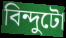
বিন্দুটো